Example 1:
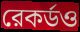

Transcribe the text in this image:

রেকর্ডও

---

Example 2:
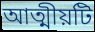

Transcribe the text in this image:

আত্মীয়টি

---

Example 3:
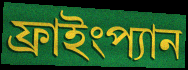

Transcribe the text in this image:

ফ্রাইংপ্যান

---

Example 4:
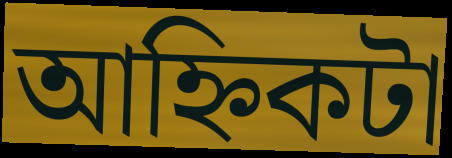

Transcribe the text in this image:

আহ্নিকটা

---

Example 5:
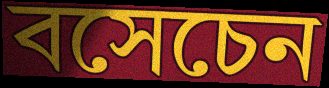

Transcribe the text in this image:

বসেচেন